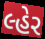
લ્હેર